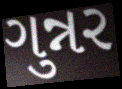
ગુન્નર